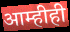
आम्हीही